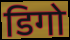
डिगो